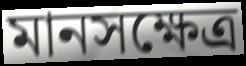
মানসক্ষেত্র